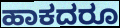
ಹಾಕದರೂ